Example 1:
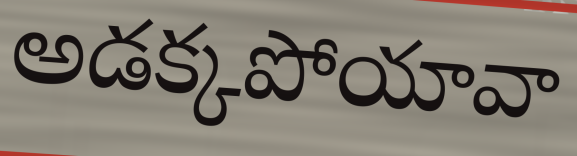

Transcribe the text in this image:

అడక్కపోయావా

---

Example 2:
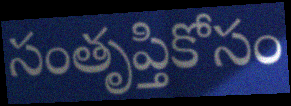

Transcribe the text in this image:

సంతృప్తికోసం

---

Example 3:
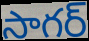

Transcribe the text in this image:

సాగర్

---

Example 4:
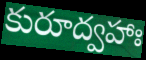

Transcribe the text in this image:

కురూద్వహాః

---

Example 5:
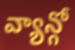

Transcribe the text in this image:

వ్యాన్గో